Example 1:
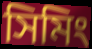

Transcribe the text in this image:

সিমিং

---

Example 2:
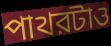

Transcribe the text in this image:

পাথরটাও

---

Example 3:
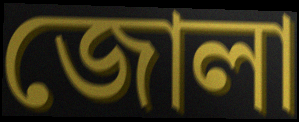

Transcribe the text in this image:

জোলা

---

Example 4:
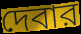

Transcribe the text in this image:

দেবার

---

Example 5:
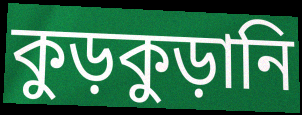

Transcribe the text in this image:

কুড়কুড়ানি